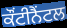
ਕੌਂਟੀਨੈਂਟਲ